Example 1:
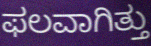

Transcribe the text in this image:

ಫಲವಾಗಿತ್ತು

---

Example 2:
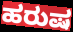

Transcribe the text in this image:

ಹರುಷ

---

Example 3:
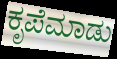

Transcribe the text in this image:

ಕೃಪೆಮಾಡು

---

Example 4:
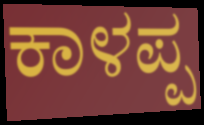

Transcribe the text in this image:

ಕಾಳಪ್ಪ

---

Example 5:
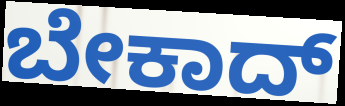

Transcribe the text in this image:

ಬೇಕಾದ್